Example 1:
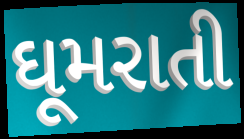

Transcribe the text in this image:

ઘૂમરાતી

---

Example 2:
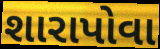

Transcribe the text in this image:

શારાપોવા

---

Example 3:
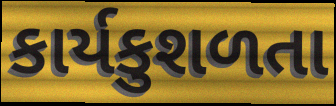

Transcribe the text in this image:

કાર્યકુશળતા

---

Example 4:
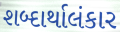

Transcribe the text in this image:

શબ્દાર્થાલંકાર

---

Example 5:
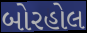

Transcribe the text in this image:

બોરહોલ